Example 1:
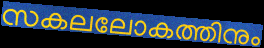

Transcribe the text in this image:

സകലലോകത്തിനും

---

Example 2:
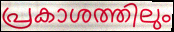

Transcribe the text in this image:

പ്രകാശത്തിലും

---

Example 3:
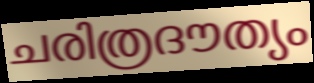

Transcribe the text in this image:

ചരിത്രദൗത്യം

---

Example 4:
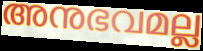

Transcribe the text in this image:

അനുഭവമല്ല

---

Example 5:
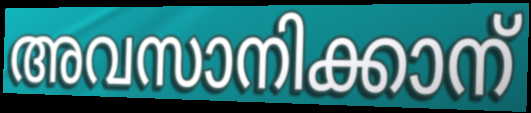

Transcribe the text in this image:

അവസാനിക്കാന്